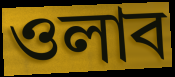
ওলাব